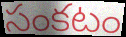
సంకటం